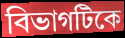
বিভাগটিকে